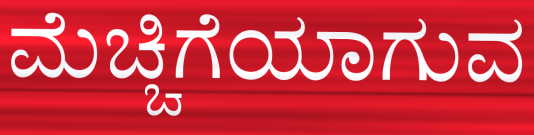
ಮೆಚ್ಚಿಗೆಯಾಗುವ